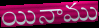
యినాము